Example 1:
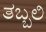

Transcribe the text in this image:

ತಬ್ಬಲಿ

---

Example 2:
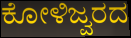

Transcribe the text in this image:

ಕೋಳಿಜ್ವರದ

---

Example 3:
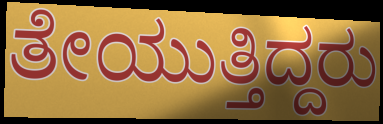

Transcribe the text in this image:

ತೇಯುತ್ತಿದ್ದರು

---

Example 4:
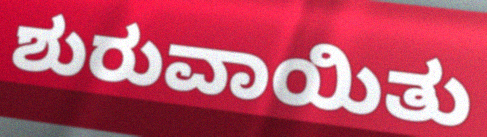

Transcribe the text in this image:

ಶುರುವಾಯಿತು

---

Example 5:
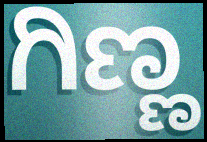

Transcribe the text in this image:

ಗಿಣ್ಣ